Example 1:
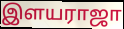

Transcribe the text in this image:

இளயராஜா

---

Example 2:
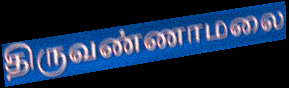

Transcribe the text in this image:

திருவண்ணாமலை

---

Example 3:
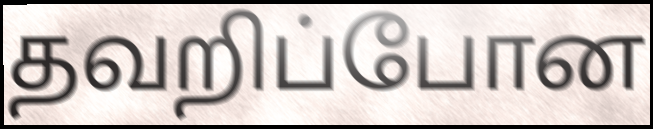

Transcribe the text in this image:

தவறிப்போன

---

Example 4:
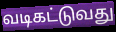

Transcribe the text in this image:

வடிகட்டுவது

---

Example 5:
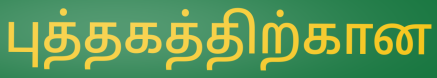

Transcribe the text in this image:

புத்தகத்திற்கான